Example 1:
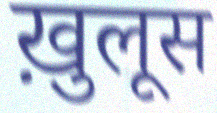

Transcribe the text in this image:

ख़ुलूस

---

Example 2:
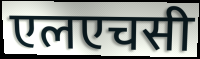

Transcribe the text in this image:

एलएचसी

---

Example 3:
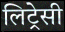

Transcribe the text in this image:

लिट्रेसी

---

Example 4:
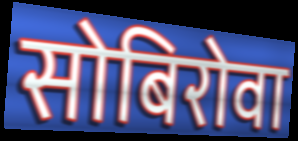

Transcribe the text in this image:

सोबिरोवा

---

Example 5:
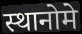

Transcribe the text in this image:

स्थानोमे